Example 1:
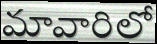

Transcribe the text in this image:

మావారిలో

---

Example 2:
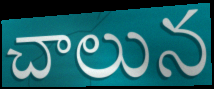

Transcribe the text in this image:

చాలున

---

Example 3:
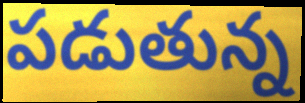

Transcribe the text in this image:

పడుతున్న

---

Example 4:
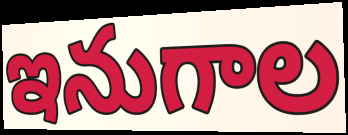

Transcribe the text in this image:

ఇనుగాల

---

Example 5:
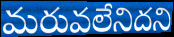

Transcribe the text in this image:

మరువలేనిదని